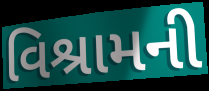
વિશ્રામની